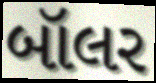
બૉલર